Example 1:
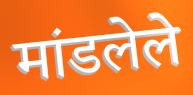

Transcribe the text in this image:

मांडलेले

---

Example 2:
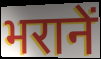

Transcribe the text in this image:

भरानें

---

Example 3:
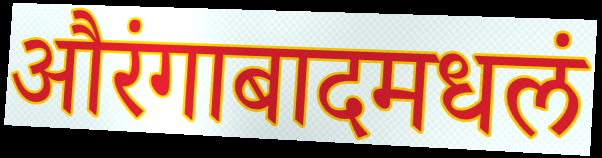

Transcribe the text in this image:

औरंगाबादमधलं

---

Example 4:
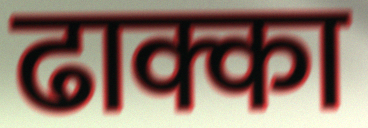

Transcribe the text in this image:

ढाक्का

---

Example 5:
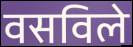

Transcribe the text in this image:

वसविले